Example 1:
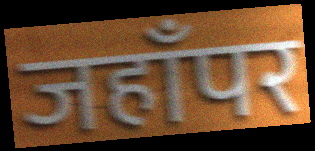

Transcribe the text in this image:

जहाँपर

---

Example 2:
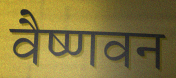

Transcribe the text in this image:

वैष्णवन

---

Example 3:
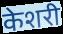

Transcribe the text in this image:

केशरी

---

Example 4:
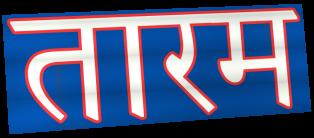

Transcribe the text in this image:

तारम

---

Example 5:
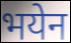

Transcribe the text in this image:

भयेन